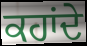
ਕਹਾਂਦੇ